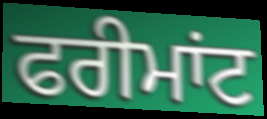
ਫਰੀਮਾਂਟ